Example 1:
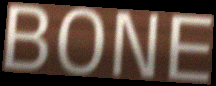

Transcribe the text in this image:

BONE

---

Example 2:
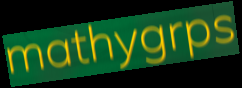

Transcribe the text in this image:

mathygrps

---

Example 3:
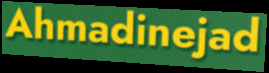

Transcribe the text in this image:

Ahmadinejad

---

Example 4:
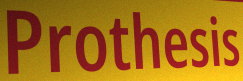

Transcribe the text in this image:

Prothesis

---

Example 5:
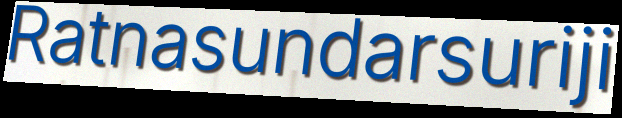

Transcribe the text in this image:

Ratnasundarsuriji